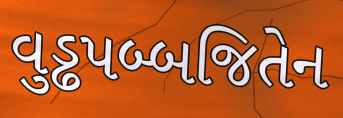
વુડ્ઢપબ્બજિતેન